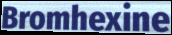
Bromhexine